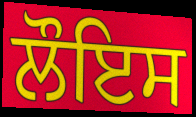
ਲੌਇਸ